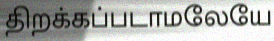
திறக்கப்படாமலேயே